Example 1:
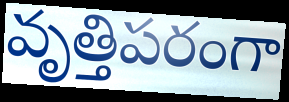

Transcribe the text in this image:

వృత్తిపరంగా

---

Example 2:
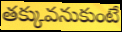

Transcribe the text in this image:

తక్కువనుకుంటే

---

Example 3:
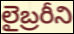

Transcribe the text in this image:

లైబ్రరీని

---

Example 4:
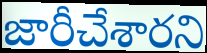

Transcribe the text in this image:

జారీచేశారని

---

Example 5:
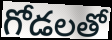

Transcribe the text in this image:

గోడలతో